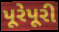
પૂરેપૂરી